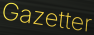
Gazetter